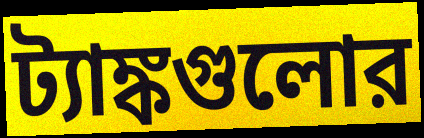
ট্যাঙ্কগুলোর